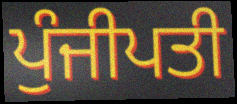
ਪੁੰਜੀਪਤੀ